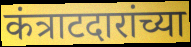
कंत्राटदारांच्या